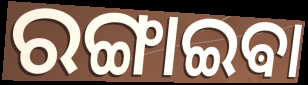
ରଙ୍ଗାଇଵା